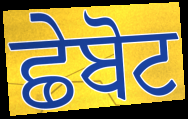
ਛੇਬੋਟ